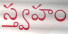
స్త్వహం